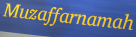
Muzaffarnamah